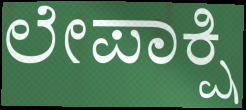
ಲೇಪಾಕ್ಷಿ